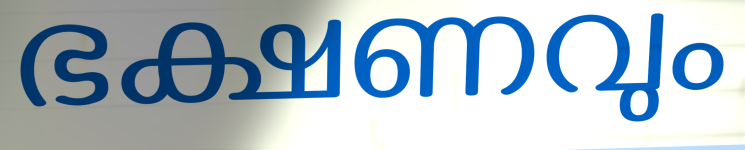
ഭക്ഷണവും